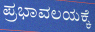
ಪ್ರಭಾವಲಯಕ್ಕೆ